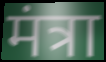
मंत्रा